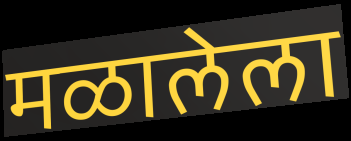
मळालेला